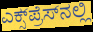
ಎಕ್ಸ್‌ಪ್ರೆಸ್‌ನಲ್ಲಿ